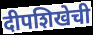
दीपशिखेची